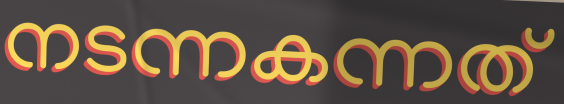
നടന്നകന്നത്